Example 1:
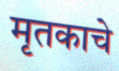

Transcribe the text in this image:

मृतकाचे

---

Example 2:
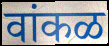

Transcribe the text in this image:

वांकळ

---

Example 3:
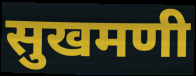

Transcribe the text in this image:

सुखमणी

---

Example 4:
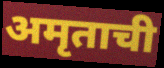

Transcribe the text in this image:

अमृताची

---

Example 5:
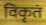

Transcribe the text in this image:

विकृतं